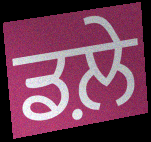
ਡਲ਼ੇ